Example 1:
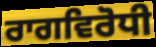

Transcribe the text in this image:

ਰਾਗਵਿਰੋਧੀ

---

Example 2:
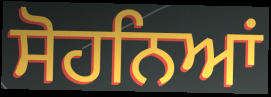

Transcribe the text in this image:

ਸੋਹਨਿਆਂ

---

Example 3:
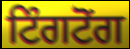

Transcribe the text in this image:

ਟਿੰਗਟੋਂਗ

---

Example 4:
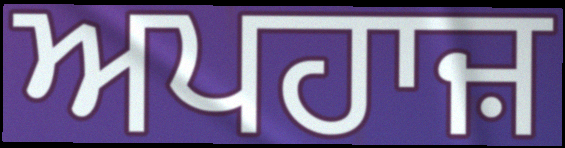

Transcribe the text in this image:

ਅਪਹਾਜ਼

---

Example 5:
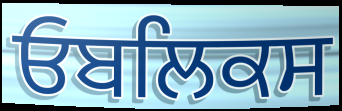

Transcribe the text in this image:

ਓਬਲਿਕਸ